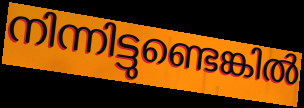
നിന്നിട്ടുണ്ടെങ്കിൽ